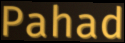
Pahad